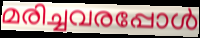
മരിച്ചവരപ്പോൾ